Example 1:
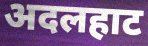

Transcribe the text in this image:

अदलहाट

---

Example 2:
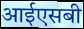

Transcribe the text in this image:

आईएसबी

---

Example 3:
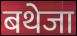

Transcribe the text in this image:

बथेजा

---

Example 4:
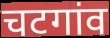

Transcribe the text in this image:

चटगांव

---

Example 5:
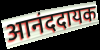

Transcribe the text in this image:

आनंददायक